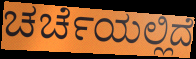
ಚರ್ಚೆಯಲ್ಲಿದೆ